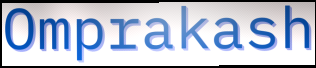
Omprakash